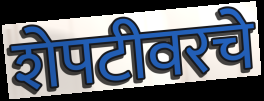
शेपटीवरचे